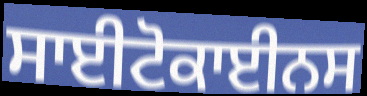
ਸਾਈਟੋਕਾਈਨਸ